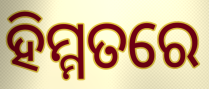
ହିମ୍ମତରେ